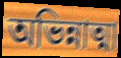
অভিন্নাত্মা